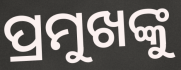
ପ୍ରମୁଖଙ୍କୁ